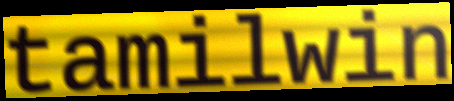
tamilwin